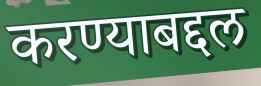
करण्याबद्दल